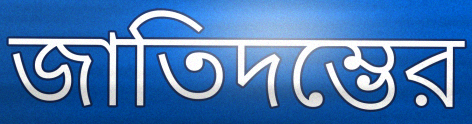
জাতিদম্ভের